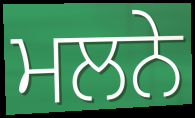
ਮਲਨੇ